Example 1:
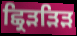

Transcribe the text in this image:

ਛ੍ਰਿੜੜਿੜ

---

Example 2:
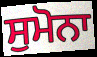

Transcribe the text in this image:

ਸੁਮੋਨਾ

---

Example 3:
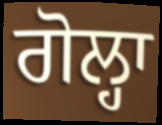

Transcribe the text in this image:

ਗੋਲ੍ਹਾ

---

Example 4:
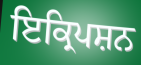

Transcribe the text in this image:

ਇਕ੍ਰਿਪਸ਼ਨ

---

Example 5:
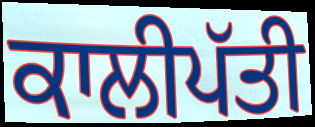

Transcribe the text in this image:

ਕਾਲੀਪੱਤੀ